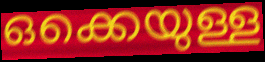
ഒക്കെയുള്ള